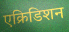
एक्रिडिशन